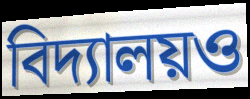
বিদ্যালয়ও